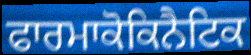
ਫਾਰਮਾਕੋਕਿਨੈਟਿਕ